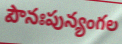
పౌనఃపున్యంగల